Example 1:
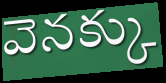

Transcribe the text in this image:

వెనక్కు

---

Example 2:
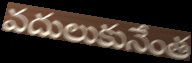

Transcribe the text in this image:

వదులుకునేంత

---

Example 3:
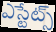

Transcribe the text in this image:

ఎస్టేట్స్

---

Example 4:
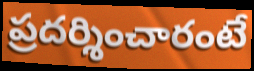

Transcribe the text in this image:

ప్రదర్శించారంటే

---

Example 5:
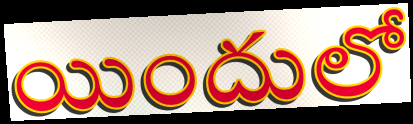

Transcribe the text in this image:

యిందులో